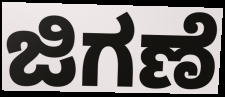
ಜಿಗಣೆ